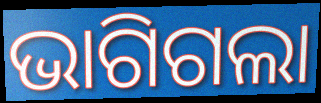
ଭାଗିଗଲା